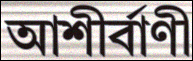
আশীর্বাণী